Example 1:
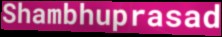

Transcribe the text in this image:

Shambhuprasad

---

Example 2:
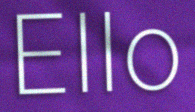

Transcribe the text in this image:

Ello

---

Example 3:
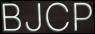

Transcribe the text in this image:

BJCP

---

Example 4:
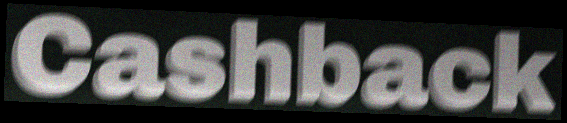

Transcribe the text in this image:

Cashback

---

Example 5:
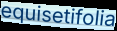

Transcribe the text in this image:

equisetifolia